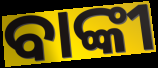
ବାଙ୍କୀ